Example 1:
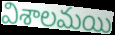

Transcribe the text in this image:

విశాలమయి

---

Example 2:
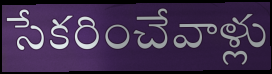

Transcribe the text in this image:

సేకరించేవాళ్లు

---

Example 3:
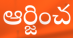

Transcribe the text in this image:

ఆర్జించ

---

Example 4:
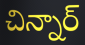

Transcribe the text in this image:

చిన్నార్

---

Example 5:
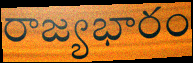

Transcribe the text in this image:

రాజ్యభారం